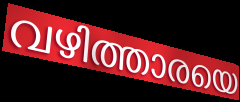
വഴിത്താരയെ